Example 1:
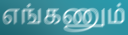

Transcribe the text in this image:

எங்கணும்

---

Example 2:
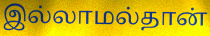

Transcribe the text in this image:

இல்லாமல்தான்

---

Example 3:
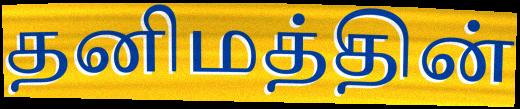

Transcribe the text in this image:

தனிமத்தின்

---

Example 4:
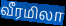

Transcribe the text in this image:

வீரமிலா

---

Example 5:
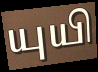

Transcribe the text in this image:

யுயி